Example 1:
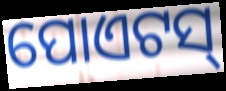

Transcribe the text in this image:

ପୋଏଟସ୍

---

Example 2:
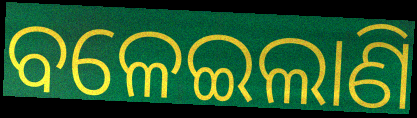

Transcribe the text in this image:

ବଳେଇଲାଣି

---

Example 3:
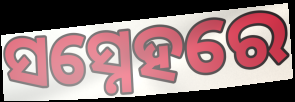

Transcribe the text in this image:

ସସ୍ନେହରେ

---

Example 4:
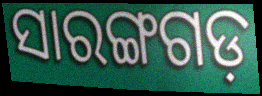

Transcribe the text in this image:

ସାରଙ୍ଗଗଡ଼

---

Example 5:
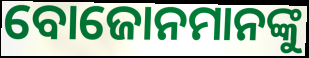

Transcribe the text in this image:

ବୋଜୋନମାନଙ୍କୁ